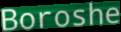
Boroshe